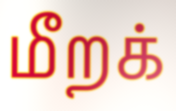
மீறக்